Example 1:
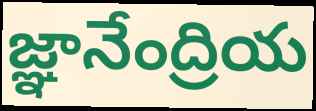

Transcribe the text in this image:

జ్ఞానేంద్రియ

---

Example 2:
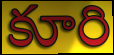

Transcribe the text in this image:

కూరి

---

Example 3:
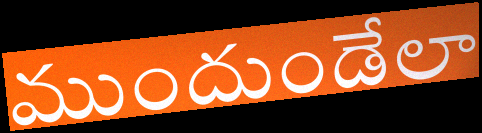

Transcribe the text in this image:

ముందుండేలా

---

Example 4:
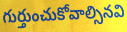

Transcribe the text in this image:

గుర్తుంచుకోవాల్సినవి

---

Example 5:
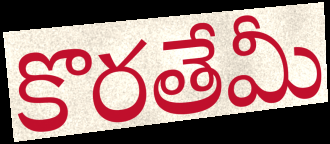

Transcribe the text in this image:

కొరతేమీ